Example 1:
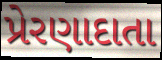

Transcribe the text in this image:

પ્રેરણાદાતા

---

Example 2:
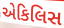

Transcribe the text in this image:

એકિલિસ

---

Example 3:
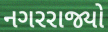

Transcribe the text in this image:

નગરરાજ્યો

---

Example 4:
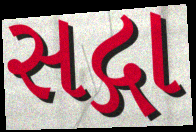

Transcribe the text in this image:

સદ્ગા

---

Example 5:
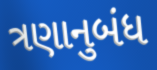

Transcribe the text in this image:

ત્રણાનુબંધ